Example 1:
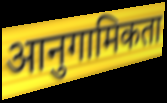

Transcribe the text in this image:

आनुगामिकता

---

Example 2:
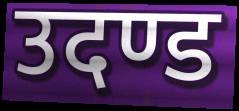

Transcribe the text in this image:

उदण्ड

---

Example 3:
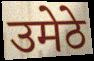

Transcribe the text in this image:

उमेठे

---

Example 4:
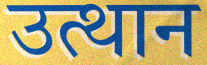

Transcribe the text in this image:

उत्थान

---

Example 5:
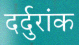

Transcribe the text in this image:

दर्दुरांक